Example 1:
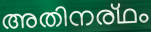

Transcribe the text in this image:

അതിനര്ഥം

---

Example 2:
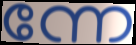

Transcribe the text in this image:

ന്നേ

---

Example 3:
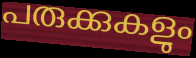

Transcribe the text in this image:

പരുക്കുകളും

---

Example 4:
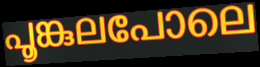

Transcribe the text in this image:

പൂങ്കുലപോലെ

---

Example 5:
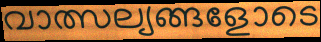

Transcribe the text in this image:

വാത്സല്യങ്ങളോടെ